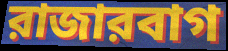
রাজারবাগ